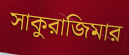
সাকুরাজিমার